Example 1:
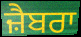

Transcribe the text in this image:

ਜ਼ੈਬਰਾ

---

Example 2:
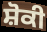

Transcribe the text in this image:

ਸ਼ੋਕੀ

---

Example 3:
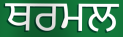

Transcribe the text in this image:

ਥਰਮਲ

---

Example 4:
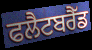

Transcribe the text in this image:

ਫਲੈਟਬਰੈੱਡ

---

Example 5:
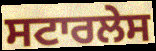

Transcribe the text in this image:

ਸਟਾਰਲੇਸ